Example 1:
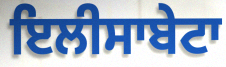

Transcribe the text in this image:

ਇਲੀਸਾਬੇਟਾ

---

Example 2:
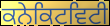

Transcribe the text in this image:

ਕਨੇਕਿਟਵਿਟੀ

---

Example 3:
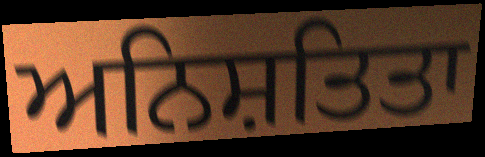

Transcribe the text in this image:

ਅਨਿਸ਼ਤਿਤਾ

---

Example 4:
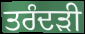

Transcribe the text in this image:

ਤਰੰਦੜੀ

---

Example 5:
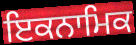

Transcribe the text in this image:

ਇਕਨਾਮਿਕ